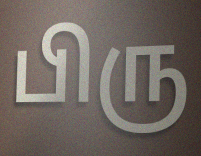
பிரு